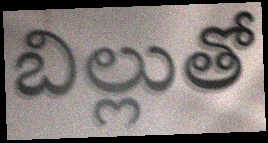
బిల్లుతో